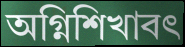
অগ্নিশিখাবৎ